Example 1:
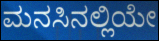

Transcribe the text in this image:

ಮನಸಿನಲ್ಲಿಯೇ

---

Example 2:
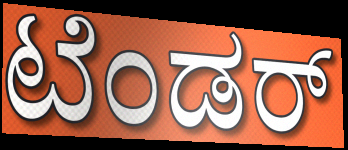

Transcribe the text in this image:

ಟೆಂಡರ್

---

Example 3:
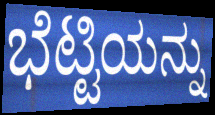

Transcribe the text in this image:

ಭೆಟ್ಟಿಯನ್ನು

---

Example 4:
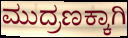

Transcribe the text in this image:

ಮುದ್ರಣಕ್ಕಾಗಿ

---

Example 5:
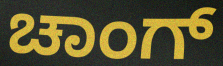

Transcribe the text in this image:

ಚಾಂಗ್